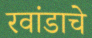
रवांडाचे